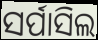
ସର୍ପାସିଲ